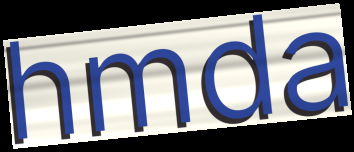
hmda